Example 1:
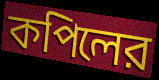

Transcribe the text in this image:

কপিলের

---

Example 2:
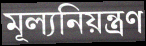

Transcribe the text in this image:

মূল্যনিয়ন্ত্রণ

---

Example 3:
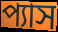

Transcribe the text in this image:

প্যাস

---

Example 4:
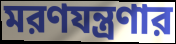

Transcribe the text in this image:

মরণযন্ত্রণার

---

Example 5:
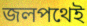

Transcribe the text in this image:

জলপথেই